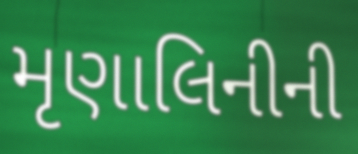
મૃણાલિનીની